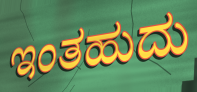
ಇಂತಹುದು